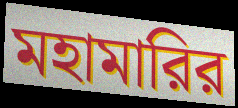
মহামারির